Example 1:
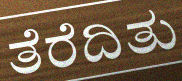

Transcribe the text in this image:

ತೆರೆದಿತು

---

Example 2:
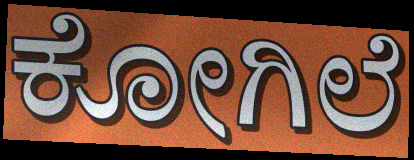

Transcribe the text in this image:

ಕೋಗಿಲೆ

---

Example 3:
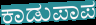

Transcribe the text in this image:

ಕಾಡುಪಾಪ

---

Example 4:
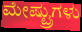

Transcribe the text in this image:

ಮೇಷ್ಟ್ರುಗಳು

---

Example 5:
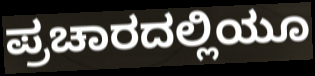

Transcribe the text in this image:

ಪ್ರಚಾರದಲ್ಲಿಯೂ